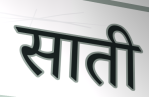
साती